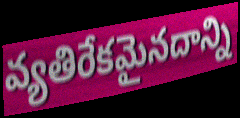
వ్యతిరేకమైనదాన్ని